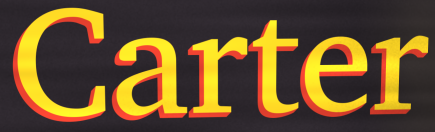
Carter